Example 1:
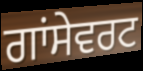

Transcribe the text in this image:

ਗਾਂਸੇਵਰਟ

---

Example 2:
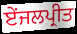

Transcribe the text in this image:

ਏਂਜਲਪ੍ਰੀਤ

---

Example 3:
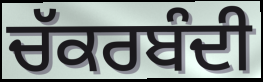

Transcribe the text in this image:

ਚੱਕਰਬੰਦੀ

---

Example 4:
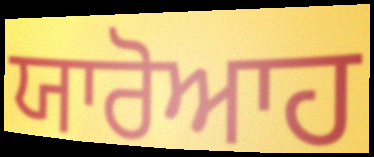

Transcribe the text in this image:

ਯਾਰੋਆਹ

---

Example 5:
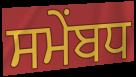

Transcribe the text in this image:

ਸਮੇਂਬਧ